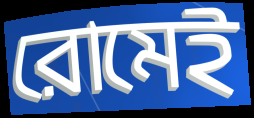
রোমেই